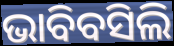
ଭାବିବସିଲି